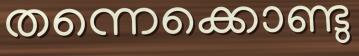
തന്നെക്കൊണ്ടു